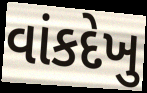
વાંકદેખુ